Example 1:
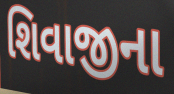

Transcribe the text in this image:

શિવાજીના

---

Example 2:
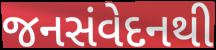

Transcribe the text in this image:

જનસંવેદનથી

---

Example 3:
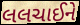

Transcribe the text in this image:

લલચાઈને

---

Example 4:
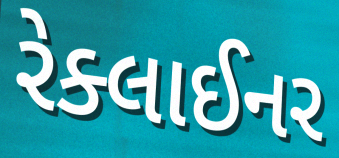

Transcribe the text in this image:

રેક્લાઈનર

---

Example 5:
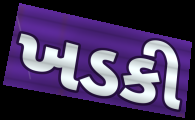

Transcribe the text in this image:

ખડકી